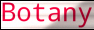
Botany